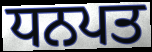
ਧਨਪਤ